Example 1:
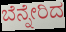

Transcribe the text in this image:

ಬೆನ್ನೇರಿದ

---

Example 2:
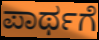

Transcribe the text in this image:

ಪಾರ್ಥಗೆ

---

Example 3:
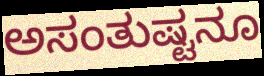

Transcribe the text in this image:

ಅಸಂತುಷ್ಟನೂ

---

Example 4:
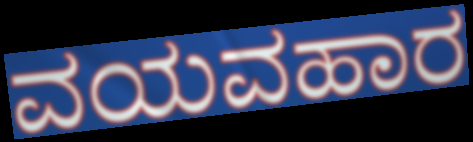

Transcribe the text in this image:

ವಯವಹಾರ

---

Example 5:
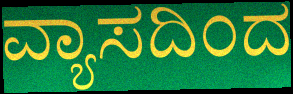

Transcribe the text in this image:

ವ್ಯಾಸದಿಂದ